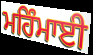
ਮਹਿੰਮਾਈ